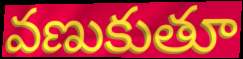
వణుకుతూ